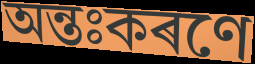
অন্তঃকৰণে